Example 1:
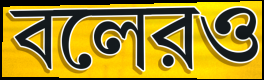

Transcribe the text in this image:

বলেরও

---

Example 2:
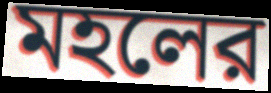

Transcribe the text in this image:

মহলের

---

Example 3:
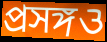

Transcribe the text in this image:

প্রসঙ্গও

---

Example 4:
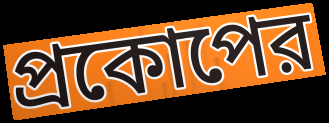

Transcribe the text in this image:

প্রকোপের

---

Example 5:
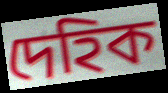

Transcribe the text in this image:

দেহিক